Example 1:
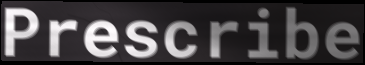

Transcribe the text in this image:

Prescribe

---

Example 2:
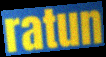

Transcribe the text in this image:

ratun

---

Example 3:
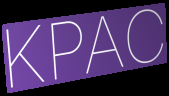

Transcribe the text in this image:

KPAC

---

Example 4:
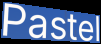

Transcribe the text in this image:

Pastel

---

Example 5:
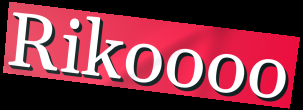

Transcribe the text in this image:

Rikoooo